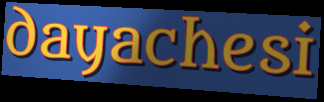
dayachesi